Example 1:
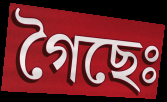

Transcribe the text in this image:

গৈছেঃ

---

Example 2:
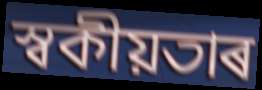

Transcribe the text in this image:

স্বকীয়তাৰ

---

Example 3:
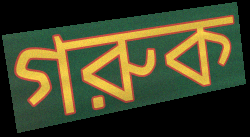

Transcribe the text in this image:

গৰুক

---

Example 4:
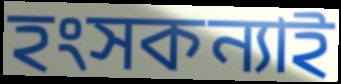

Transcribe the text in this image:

হংসকন্যাই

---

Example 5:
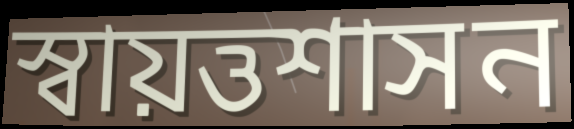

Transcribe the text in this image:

স্বায়ত্তশাসন